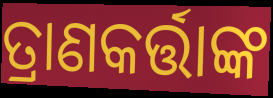
ତ୍ରାଣକର୍ତ୍ତାଙ୍କ